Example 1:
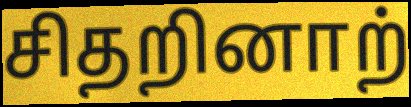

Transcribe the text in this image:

சிதறினாற்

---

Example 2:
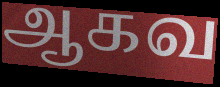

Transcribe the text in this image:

ஆகவ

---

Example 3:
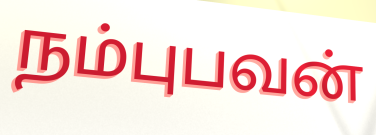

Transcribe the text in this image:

நம்புபவன்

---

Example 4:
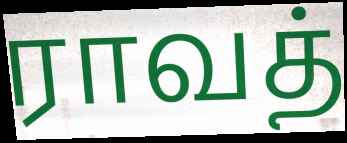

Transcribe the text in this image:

ராவத்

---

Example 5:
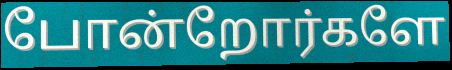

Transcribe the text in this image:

போன்றோர்களே